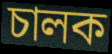
চালক